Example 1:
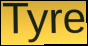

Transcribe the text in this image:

Tyre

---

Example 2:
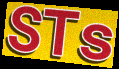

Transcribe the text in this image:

STs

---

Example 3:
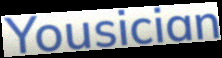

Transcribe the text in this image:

Yousician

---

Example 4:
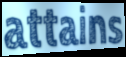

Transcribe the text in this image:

attains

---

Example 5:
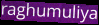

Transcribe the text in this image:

raghumuliya